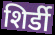
शिर्डी